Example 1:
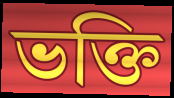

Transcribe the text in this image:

ভক্তি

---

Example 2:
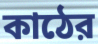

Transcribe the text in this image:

কাঠের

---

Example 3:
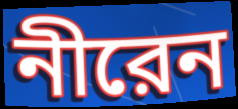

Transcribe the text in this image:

নীরেন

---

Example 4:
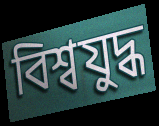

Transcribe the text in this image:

বিশ্বযুদ্ধ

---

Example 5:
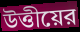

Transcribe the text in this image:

উত্তীয়ের